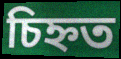
চিহ্নত